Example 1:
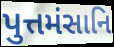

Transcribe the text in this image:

પુત્તમંસાનિ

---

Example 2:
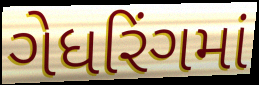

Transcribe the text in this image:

ગેધરિંગમાં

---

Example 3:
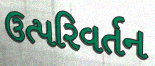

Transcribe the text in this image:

ઉત્પરિવર્તન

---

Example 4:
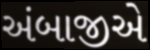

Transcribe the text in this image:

અંબાજીએ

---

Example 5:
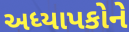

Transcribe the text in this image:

અધ્યાપકોને